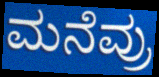
ಮನೆವ್ರು